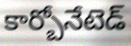
కార్బోనేటెడ్